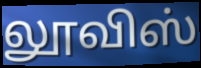
லூவிஸ்